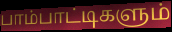
பாம்பாட்டிகளும்